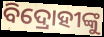
ବିଦ୍ରୋହୀଙ୍କୁ